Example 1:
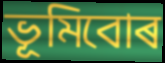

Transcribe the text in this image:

ভূমিবোৰ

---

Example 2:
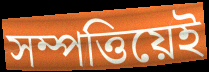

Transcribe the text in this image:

সম্পত্তিয়েই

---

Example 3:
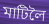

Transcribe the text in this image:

মাটিলৈ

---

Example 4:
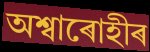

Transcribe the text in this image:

অশ্বাৰোহীৰ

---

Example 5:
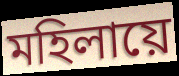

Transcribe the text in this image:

মহিলায়ে